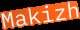
Makizh